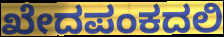
ಖೇದಪಂಕದಲಿ